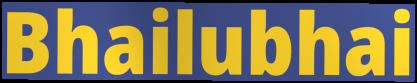
Bhailubhai